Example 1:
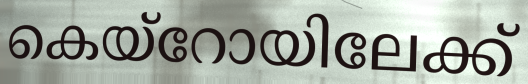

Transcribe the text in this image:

കെയ്റോയിലേക്ക്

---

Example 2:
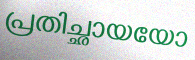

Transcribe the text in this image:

പ്രതിച്ഛായയോ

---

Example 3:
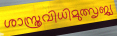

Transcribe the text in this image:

ശാസ്ത്രവിധിമുത്സൃജ്യ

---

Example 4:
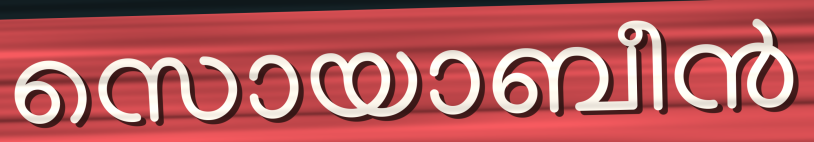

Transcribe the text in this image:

സൊയാബീൻ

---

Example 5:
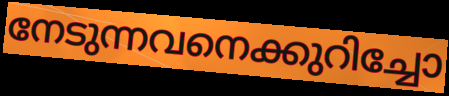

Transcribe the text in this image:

നേടുന്നവനെക്കുറിച്ചോ